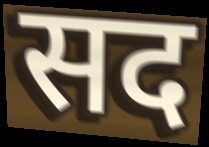
सद